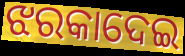
ଝରକାଦେଇ